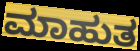
ಮಾಹುತ